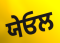
ਯੇਓਲ